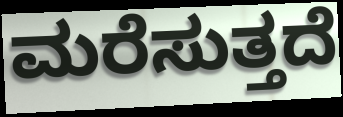
ಮರೆಸುತ್ತದೆ